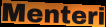
Menteri